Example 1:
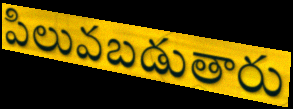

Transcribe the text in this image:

పిలువబడుతారు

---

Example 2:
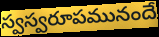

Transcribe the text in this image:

స్వస్వరూపమునందే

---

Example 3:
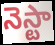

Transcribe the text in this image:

నెస్టా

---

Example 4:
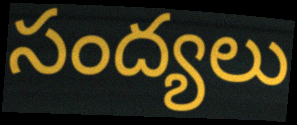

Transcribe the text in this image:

సంద్యలు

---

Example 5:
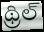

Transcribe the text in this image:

థ్రిల్